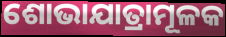
ଶୋଭାଯାତ୍ରାମୂଳକ